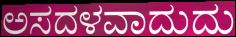
ಅಸದಳವಾದುದು